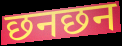
छनछन